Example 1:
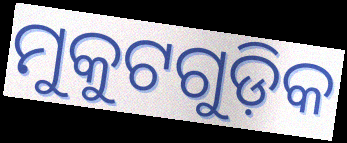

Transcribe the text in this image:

ମୁକୁଟଗୁଡ଼ିକ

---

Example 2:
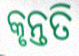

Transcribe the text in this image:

କୃନ୍ତତି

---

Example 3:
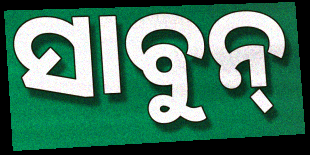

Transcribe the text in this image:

ସାବୁନ୍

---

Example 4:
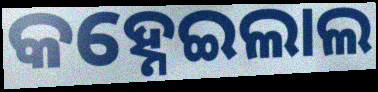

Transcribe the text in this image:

କହ୍ନେଇଲାଲ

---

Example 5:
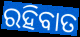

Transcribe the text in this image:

ରହିବାତ